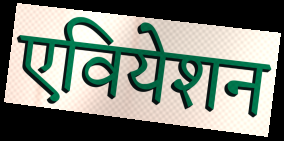
एवियेशन